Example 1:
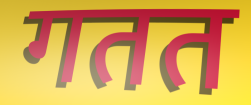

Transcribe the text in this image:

गतत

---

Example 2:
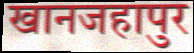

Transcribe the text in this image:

खानजहापुर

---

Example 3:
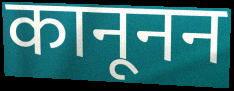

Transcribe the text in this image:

कानूनन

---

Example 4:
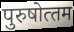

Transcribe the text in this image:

पुरुषोत्‍तम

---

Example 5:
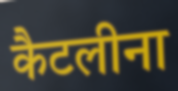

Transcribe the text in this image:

कैटलीना